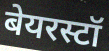
बेयरस्टॉ